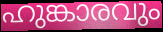
ഹുങ്കാരവും